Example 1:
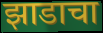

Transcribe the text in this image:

झाडाचा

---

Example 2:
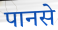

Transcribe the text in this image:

पानसे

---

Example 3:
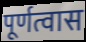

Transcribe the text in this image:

पूर्णत्वास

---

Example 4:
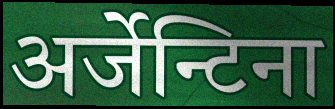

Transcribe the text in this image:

अर्जेन्टिना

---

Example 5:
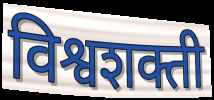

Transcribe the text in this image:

विश्वशक्ती